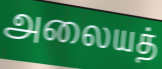
அலையத்